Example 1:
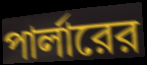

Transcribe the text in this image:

পার্লারের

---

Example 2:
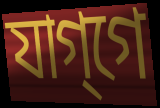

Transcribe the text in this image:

যাগ্‌গে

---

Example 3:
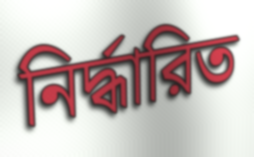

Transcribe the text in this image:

নির্দ্ধারিত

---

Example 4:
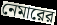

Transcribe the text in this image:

নেমারের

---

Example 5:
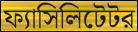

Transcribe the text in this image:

ফ্যাসিলিটেটর